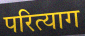
परित्याग